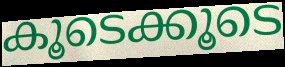
കൂടെക്കൂടെ